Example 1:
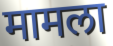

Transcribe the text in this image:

मामला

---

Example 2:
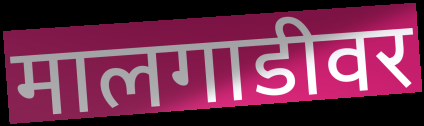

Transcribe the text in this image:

मालगाडीवर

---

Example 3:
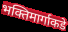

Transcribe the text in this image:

भक्तिमार्गाकडे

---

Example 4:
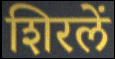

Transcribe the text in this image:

शिरलें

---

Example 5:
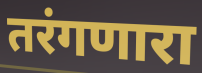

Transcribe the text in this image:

तरंगणारा